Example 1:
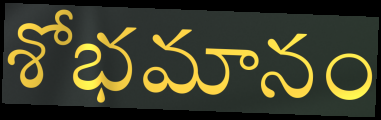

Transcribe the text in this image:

శోభమానం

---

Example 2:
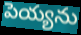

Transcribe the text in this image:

పెయ్యను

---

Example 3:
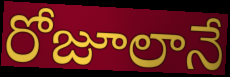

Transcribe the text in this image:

రోజూలానే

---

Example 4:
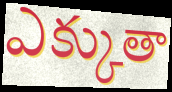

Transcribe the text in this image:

ఎక్కుతా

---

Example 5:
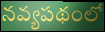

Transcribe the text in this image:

నవ్యపథంలో